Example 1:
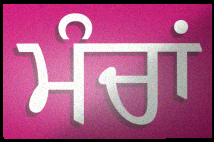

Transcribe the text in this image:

ਮੰਚਾਂ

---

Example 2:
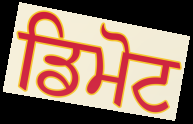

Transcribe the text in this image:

ਡਿਮੋਟ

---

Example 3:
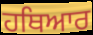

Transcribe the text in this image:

ਹਥਿਆਰ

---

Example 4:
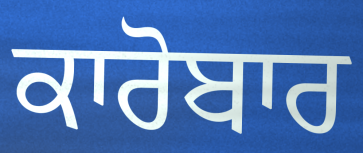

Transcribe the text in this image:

ਕਾਰੋਬਾਰ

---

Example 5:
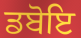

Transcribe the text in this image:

ਡਬੋਇ